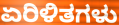
ಏರಿಳಿತಗಳು